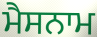
ਮੈਸਨਾਮ